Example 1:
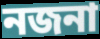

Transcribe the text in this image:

নজনা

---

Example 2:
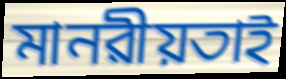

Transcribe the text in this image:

মানৱীয়তাই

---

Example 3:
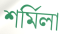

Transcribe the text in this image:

শৰ্মিলা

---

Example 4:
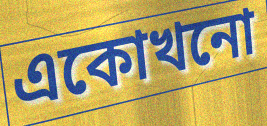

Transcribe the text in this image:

একোখনো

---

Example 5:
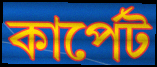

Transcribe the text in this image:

কাৰ্পেট